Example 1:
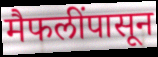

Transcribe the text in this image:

मैफलींपासून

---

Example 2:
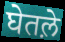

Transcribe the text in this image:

घेतल़े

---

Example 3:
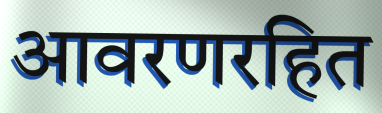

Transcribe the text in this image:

आवरणरहित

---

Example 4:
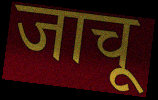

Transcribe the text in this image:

जाचू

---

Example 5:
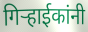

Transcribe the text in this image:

गिऱ्हाईकांनी